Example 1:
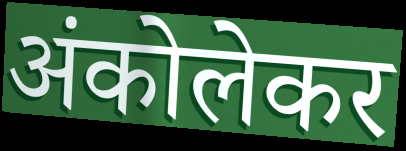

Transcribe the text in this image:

अंकोलेकर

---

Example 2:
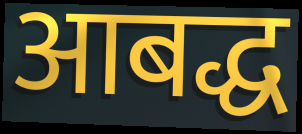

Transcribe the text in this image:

आबद्ध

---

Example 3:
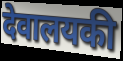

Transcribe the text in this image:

देवालयकी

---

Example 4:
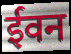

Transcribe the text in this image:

ईवन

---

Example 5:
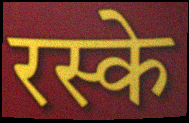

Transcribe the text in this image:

रस्के